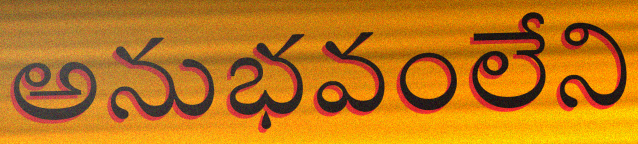
అనుభవంలేని